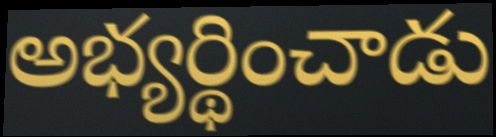
అభ్యర్థించాడు